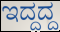
ಇದ್ದದ್ದ